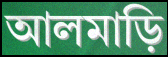
আলমাড়ি